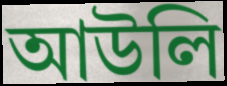
আউলি